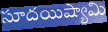
సూదయిష్యామి